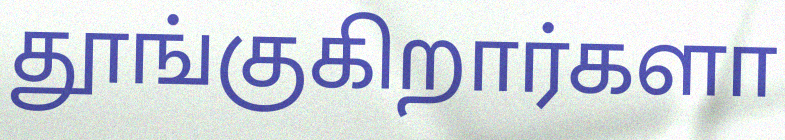
தூங்குகிறார்களா